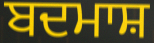
ਬਦਮਾਸ਼